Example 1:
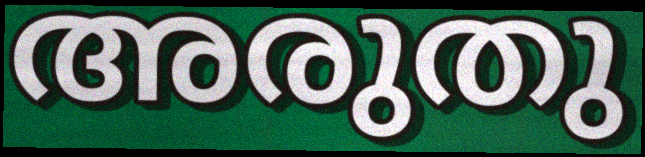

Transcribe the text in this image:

അരുതു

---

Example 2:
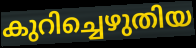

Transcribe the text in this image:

കുറിച്ചെഴുതിയ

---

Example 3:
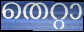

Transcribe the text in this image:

തെറ്റാ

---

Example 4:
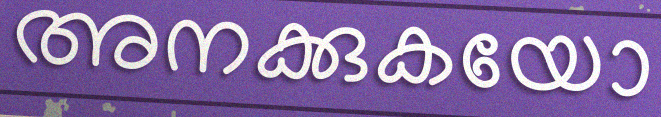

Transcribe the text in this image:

അനക്കുകയോ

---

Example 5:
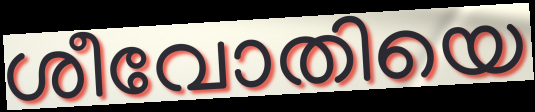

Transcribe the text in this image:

ശീവോതിയെ